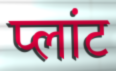
प्लांट